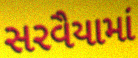
સરવૈયામાં